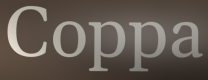
Coppa